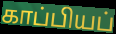
காப்பியப்